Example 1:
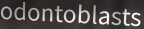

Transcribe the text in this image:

odontoblasts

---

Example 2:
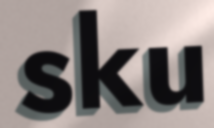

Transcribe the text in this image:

sku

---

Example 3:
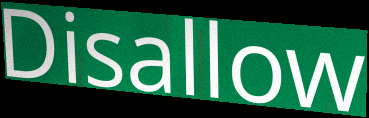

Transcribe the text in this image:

Disallow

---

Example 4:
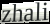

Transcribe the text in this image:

zhali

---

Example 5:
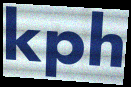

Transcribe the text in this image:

kph